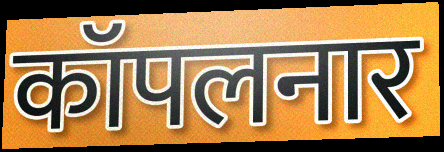
कॉपलनार